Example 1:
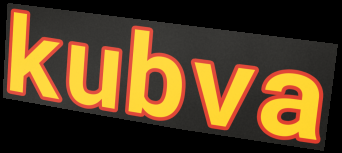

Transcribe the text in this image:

kubva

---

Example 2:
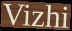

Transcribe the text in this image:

Vizhi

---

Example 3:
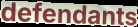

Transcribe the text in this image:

defendants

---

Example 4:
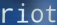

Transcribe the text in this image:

riot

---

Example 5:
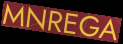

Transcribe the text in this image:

MNREGA